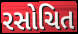
રસોચિત